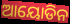
ଆୟୋଡିନ